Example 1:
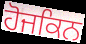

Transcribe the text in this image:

ਹੋਜਕਿਨ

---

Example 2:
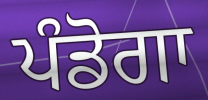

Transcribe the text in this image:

ਪੰਡੋਗਾ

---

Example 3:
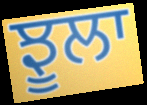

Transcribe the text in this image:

ਝੂਲਾ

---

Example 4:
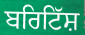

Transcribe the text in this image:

ਬਰਿਟਿੱਸ਼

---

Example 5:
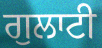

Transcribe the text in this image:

ਗੁਲਾਟੀ